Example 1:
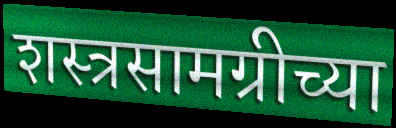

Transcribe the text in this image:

शस्त्रसामग्रीच्या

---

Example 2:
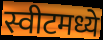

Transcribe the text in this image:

स्वीटमध्ये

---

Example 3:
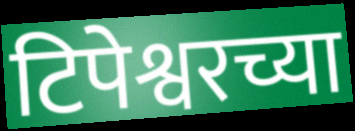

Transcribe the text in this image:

टिपेश्वरच्या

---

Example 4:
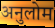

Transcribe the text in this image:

अनुलोम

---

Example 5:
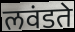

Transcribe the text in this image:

लवंडते